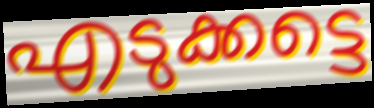
എടുക്കട്ടെ